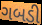
ગબડી